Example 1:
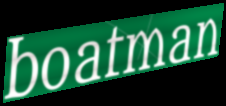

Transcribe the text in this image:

boatman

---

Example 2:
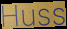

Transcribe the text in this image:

Huss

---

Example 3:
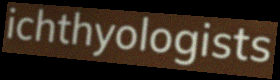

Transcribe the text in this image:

ichthyologists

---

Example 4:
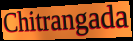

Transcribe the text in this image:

Chitrangada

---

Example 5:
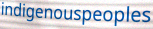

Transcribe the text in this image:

indigenouspeoples